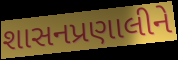
શાસનપ્રણાલીને